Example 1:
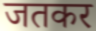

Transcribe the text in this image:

जतकर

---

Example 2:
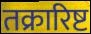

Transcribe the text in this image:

तक्रारिष्ट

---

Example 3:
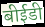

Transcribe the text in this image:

बीईडी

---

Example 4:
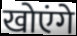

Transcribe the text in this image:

खोएंगे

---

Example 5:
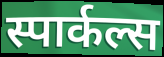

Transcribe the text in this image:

स्पार्कल्स